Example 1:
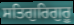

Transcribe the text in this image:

ਸਤਿਗੁਰਿਗੁਰੂ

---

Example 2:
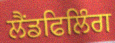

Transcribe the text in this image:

ਲੈਂਡਫਿਲਿੰਗ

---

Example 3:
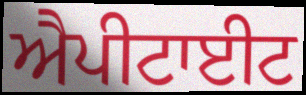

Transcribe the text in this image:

ਐਪੀਟਾਈਟ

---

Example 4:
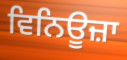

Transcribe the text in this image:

ਵਿਨਿਊਜ਼ਾ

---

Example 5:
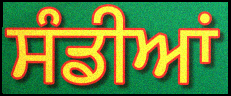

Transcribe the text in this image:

ਸੰਡੀਆਂ